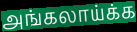
அங்கலாய்க்க